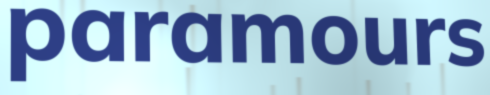
paramours